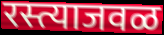
रस्त्याजवळ